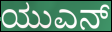
ಯುಎನ್